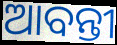
ଆବନ୍ତୀ